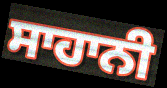
ਸਾਹਾਨੀ